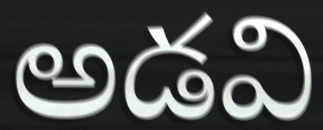
అడవి